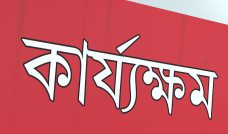
কাৰ্য্যক্ষম